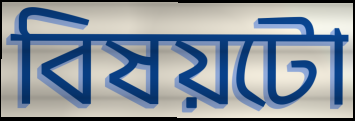
বিষয়টো